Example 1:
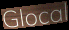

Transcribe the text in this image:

Glocal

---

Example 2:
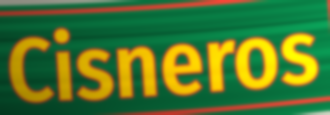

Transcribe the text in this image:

Cisneros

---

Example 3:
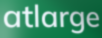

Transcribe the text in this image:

atlarge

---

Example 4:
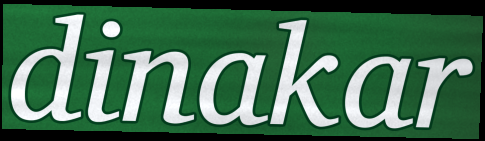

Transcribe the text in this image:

dinakar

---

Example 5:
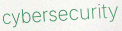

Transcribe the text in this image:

cybersecurity